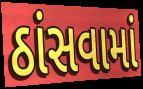
ઠાંસવામાં